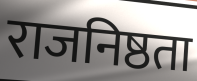
राजनिष्ठता